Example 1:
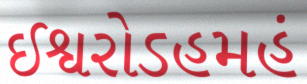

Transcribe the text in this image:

ઈશ્વરોઽહમહં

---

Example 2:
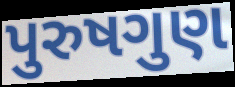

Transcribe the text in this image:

પુરુષગુણ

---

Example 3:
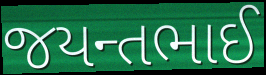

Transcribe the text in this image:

જયન્તભાઈ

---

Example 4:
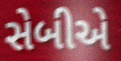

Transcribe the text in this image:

સેબીએ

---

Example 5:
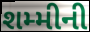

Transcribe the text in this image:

શમ્મીની